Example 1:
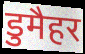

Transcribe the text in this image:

डुमैहर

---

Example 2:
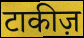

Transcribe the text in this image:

टाकीज़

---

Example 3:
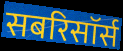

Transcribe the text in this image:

सबरिसॉर्स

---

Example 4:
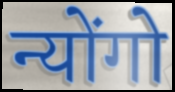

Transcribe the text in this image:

न्योंगो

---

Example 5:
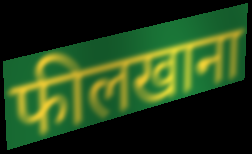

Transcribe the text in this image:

फीलखाना